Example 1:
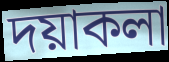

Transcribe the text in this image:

দয়াকলা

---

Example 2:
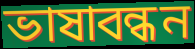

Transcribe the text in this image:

ভাষাবন্ধন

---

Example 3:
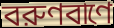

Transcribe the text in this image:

বরুণবাণে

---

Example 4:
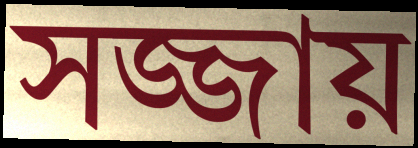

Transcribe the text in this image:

সজ্জায়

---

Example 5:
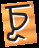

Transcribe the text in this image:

চূ